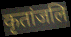
कृतांजलि